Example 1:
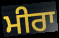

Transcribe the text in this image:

ਮੀਰਾ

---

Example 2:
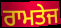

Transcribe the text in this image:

ਰਾਮਤੇਜ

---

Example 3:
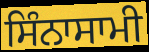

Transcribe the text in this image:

ਸਿੰਨਾਸਾਮੀ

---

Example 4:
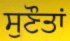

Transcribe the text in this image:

ਸੁਣੌਤਾਂ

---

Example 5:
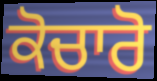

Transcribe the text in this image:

ਕੋਚਾਰੋ